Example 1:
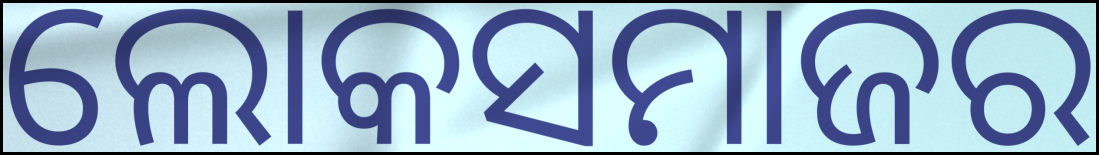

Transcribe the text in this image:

ଲୋକସମାଜର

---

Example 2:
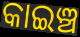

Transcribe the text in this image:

କାଇଞ୍ଚ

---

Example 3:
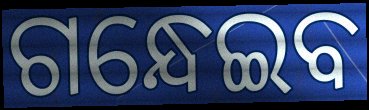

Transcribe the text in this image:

ଗନ୍ଧେଇବ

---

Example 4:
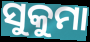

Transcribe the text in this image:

ସୁକୁମା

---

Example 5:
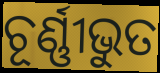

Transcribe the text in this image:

ଚୂର୍ଣ୍ଣୀଭୁତ